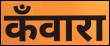
कँवारा